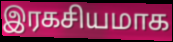
இரகசியமாக